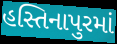
હસ્તિનાપુરમાં